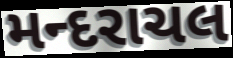
મન્દરાચલ